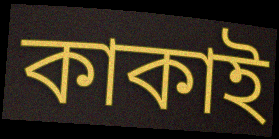
কাকাই